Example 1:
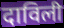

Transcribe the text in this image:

दाविली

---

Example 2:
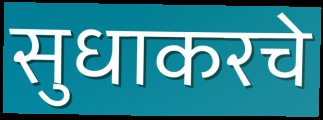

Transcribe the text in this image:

सुधाकरचे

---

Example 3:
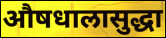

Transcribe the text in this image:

औषधालासुद्धा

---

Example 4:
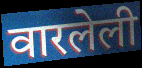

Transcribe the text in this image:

वारलेली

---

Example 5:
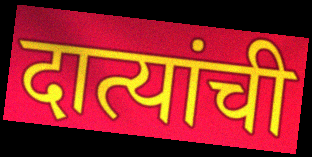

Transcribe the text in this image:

दात्यांची